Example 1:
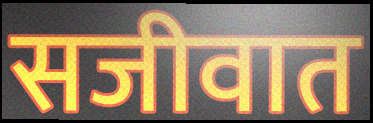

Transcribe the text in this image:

सजीवात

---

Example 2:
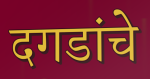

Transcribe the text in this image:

दगडांचे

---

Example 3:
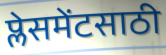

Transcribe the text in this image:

प्लेसमेंटसाठी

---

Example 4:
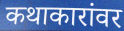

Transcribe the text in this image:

कथाकारांवर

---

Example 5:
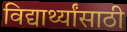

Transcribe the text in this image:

विद्यार्थ्यांसाठी